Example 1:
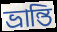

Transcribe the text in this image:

ভ্রান্তি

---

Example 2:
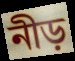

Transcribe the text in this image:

নীড়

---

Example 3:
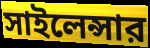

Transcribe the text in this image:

সাইলেন্সার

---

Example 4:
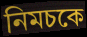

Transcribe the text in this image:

নিমচকে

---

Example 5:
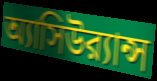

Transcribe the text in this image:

অ্যাসিউর‍্যান্স